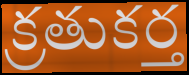
క్రతుకర్త